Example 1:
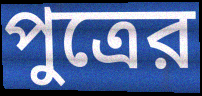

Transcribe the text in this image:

পুত্রের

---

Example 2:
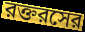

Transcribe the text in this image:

রক্তরসের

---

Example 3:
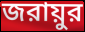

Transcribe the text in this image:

জরায়ুর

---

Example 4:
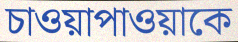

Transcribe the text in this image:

চাওয়াপাওয়াকে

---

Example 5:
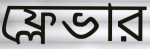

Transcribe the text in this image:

ফ্লেভার